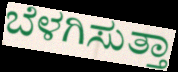
ಬೆಳಗಿಸುತ್ತಾ